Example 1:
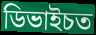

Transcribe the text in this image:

ডিভাইচত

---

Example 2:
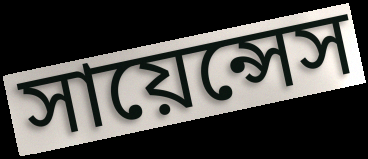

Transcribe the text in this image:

সায়েন্সেস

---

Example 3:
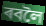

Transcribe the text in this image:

ৰবলৈ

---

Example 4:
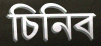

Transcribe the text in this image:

চিনিব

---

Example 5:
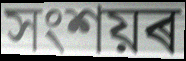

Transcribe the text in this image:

সংশয়ৰ